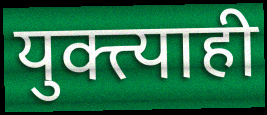
युक्त्याही